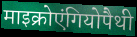
माइक्रोएंगियोपैथी